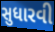
સુધારવી